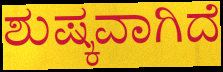
ಶುಷ್ಕವಾಗಿದೆ